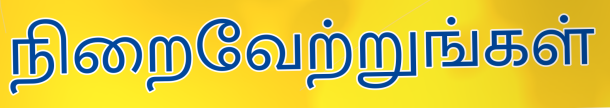
நிறைவேற்றுங்கள்